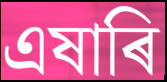
এষাৰি